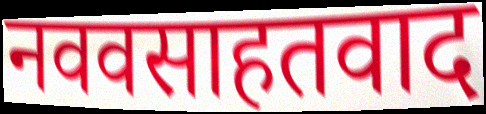
नववसाहतवाद